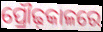
ପ୍ରୌଢ଼କାଳରେ